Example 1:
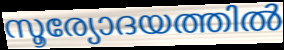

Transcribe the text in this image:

സൂര്യോദയത്തിൽ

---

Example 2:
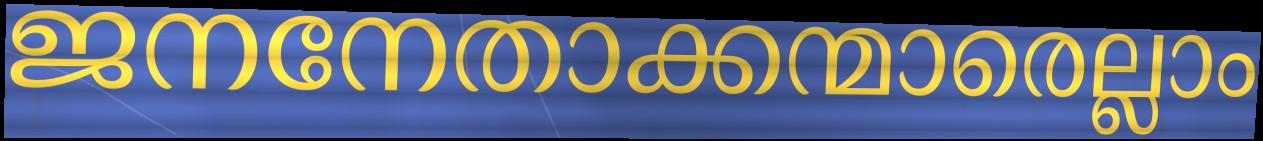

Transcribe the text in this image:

ജനനേതാക്കന്മാരെല്ലാം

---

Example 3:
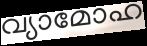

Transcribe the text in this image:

വ്യാമോഹ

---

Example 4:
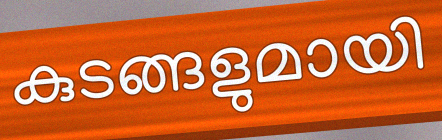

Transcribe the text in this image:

കുടങ്ങളുമായി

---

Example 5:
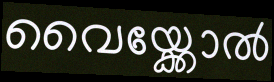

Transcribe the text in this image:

വൈയ്ക്കോൽ